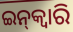
ଇନ୍‌କ୍ଵାରି